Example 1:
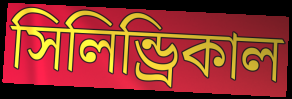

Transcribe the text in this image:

সিলিন্ড্রিকাল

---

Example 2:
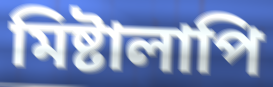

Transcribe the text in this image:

মিষ্টালাপি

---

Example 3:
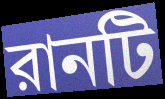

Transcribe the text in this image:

রানটি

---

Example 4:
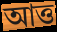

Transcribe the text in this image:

আত্ত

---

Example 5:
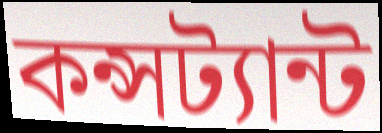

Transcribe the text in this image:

কন্সট্যান্ট